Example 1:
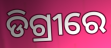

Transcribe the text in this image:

ଡିଗ୍ରୀରେ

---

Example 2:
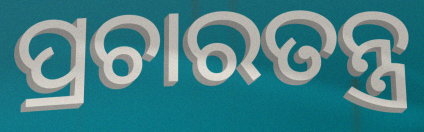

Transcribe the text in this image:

ପ୍ରଚାରତନ୍ତ୍ର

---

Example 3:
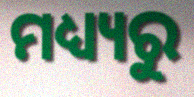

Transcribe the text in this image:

ମଧ୍ୟ୍ୟରୁ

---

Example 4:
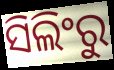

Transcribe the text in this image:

ସିଲିଂରୁ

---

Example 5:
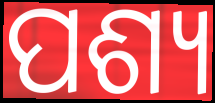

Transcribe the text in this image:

ପଶ୍ୟ